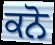
ਕਨੋ